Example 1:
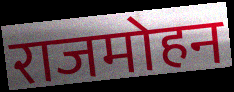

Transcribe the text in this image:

राजमोहन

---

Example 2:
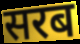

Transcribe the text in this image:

सरब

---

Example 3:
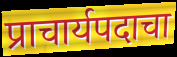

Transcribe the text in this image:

प्राचार्यपदाचा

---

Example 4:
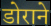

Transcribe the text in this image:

डोराने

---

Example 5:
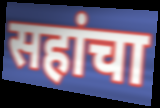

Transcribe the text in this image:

सहांचा